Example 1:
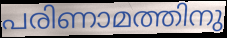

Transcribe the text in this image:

പരിണാമത്തിനു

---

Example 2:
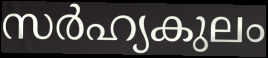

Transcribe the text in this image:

സർഹ്യകുലം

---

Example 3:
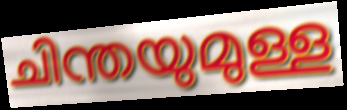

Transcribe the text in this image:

ചിന്തയുമുള്ള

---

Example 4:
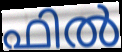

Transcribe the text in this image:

ഫിൽ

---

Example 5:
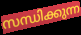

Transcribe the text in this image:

സന്ധിക്കുന്ന